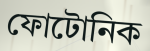
ফোটোনিক